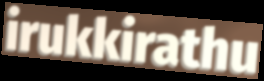
irukkirathu